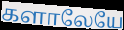
களாலேயே